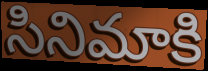
సినిమాకి